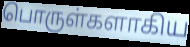
பொருள்களாகிய